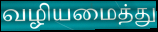
வழியமைத்து